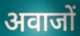
अवाजों